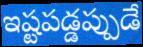
ఇష్టపడ్డప్పుడే